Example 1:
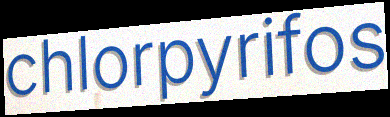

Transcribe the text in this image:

chlorpyrifos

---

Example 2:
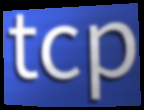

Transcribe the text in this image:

tcp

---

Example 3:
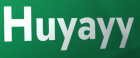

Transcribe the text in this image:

Huyayy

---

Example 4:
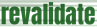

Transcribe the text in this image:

revalidate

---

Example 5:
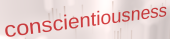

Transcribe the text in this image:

conscientiousness